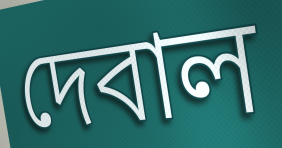
দেবাল